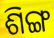
ଶିଙ୍ଗ